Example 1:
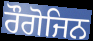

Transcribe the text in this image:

ਰੌਗੋਜਿਨ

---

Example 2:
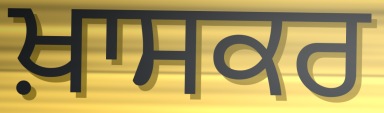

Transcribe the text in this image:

ਖ਼ਾਸਕਰ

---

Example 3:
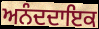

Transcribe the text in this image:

ਅਨੰਦਦਾਇਕ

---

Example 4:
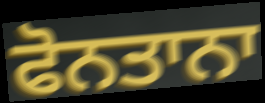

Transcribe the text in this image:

ਫੋਨਤਾਨਾ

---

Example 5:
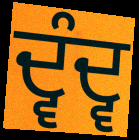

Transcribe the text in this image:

ਦ੍ਵੰਦ੍ਵ